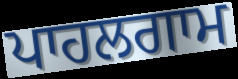
ਪਾਹਲਗਾਮ